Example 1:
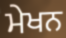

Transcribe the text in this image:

ਮੇਖਨ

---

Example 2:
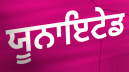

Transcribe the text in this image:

ਯੂਨਾਇਟੇਡ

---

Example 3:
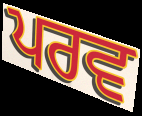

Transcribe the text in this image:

ਪਰਵ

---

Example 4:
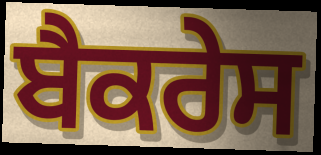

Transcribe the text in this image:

ਬੈਕਰੇਸ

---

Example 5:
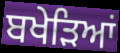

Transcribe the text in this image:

ਬਖੇੜਿਆਂ